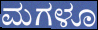
ಮಗಳೂ